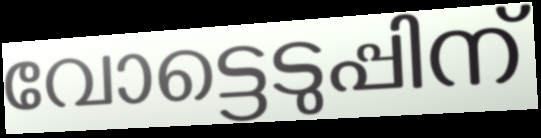
വോട്ടെടുപ്പിന്